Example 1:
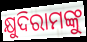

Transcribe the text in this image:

କ୍ଷୁଦିରାମଙ୍କୁ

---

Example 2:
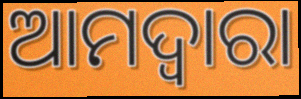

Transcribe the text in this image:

ଆମଦ୍ୱାରା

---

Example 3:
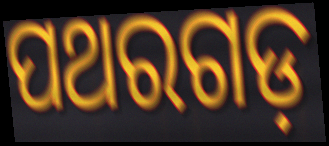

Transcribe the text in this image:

ପଥରଗଡ଼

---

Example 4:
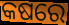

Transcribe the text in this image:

କଷରେ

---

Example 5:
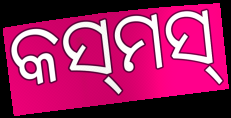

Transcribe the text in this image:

କସ୍‌ମସ୍